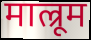
माल्रूम